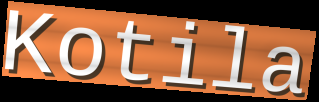
Kotila